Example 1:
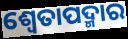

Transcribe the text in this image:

ଶ୍ଵେତାପଦ୍ମାର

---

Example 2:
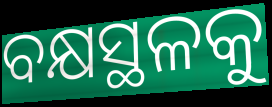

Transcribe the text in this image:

ବକ୍ଷସ୍ଥଳକୁ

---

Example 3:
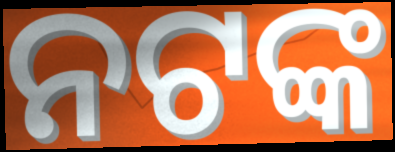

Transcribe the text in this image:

ନଟଙ୍କ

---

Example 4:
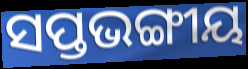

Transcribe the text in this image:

ସପ୍ତଭଙ୍ଗୀୟ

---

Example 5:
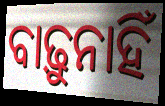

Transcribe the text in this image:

ବାଢ଼ୁନାହିଁ